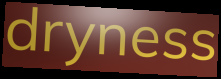
dryness